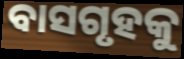
ବାସଗୃହକୁ